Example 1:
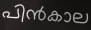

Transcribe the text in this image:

പിൻകാല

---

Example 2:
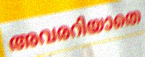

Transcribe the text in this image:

അവരറിയാതെ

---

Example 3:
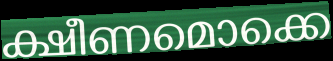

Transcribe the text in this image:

ക്ഷീണമൊക്കെ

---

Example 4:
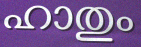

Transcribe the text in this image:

ഹാതും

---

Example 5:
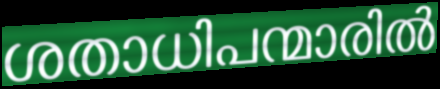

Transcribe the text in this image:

ശതാധിപന്മാരിൽ